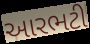
આરભટી